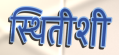
स्थितीशी